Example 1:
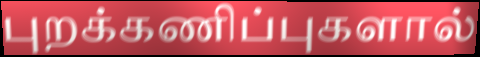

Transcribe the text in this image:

புறக்கணிப்புகளால்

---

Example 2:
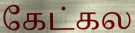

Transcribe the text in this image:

கேட்கல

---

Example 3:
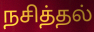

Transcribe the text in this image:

நசித்தல்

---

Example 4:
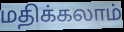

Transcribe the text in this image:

மதிக்கலாம்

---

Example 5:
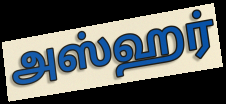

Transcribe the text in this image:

அஸ்ஹர்